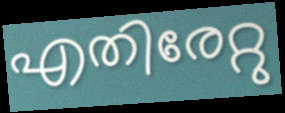
എതിരേറ്റു